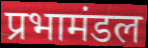
प्रभामंडल